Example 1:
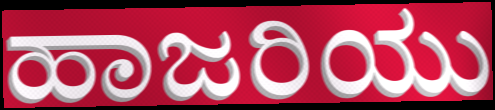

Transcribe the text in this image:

ಹಾಜರಿಯು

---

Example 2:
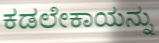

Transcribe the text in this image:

ಕಡಲೇಕಾಯನ್ನು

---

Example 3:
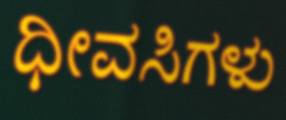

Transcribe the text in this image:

ಧೀವಸಿಗಳು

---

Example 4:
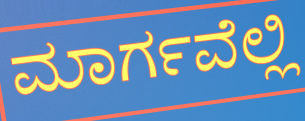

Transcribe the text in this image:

ಮಾರ್ಗವೆಲ್ಲಿ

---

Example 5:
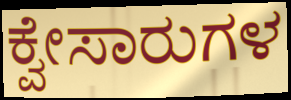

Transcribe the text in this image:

ಕ್ವೇಸಾರುಗಳ